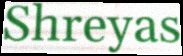
Shreyas